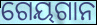
ଗେୟଗାନ